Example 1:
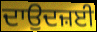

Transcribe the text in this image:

ਦਾਉਦਜ਼ਈ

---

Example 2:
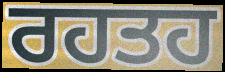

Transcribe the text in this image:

ਰਹਤਹ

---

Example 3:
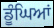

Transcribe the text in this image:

ਡੂੰਘਿਆਂ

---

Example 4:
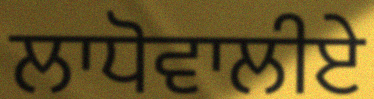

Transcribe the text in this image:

ਲਾਧੋਵਾਲੀਏ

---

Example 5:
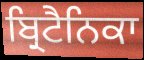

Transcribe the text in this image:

ਬ੍ਰਿਟੈਨਿਕਾ